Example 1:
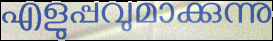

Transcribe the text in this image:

എളുപ്പവുമാക്കുന്നു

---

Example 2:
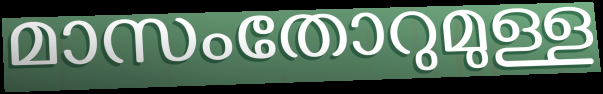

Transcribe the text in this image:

മാസംതോറുമുള്ള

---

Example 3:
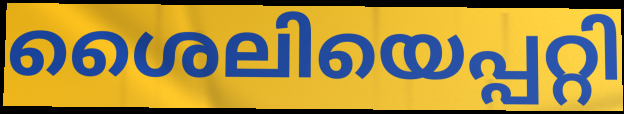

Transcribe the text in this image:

ശൈലിയെപ്പറ്റി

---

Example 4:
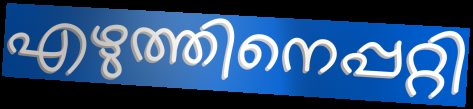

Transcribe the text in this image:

എഴുത്തിനെപ്പറ്റി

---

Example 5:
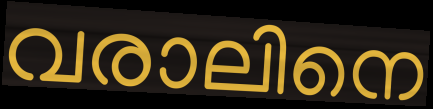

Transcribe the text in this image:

വരാലിനെ